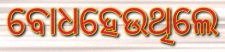
ବୋଧହେଉଥିଲେ